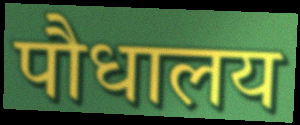
पौधालय